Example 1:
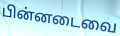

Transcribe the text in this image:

பின்னடைவை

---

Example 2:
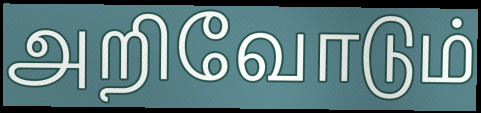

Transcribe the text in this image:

அறிவோடும்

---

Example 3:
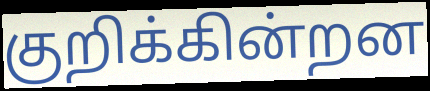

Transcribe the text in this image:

குறிக்கின்றன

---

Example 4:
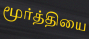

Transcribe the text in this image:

மூர்த்தியை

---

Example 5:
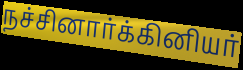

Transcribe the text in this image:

நச்சினார்க்கினியர்